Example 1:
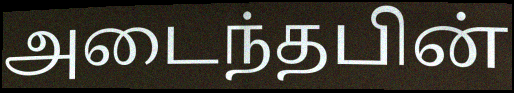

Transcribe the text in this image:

அடைந்தபின்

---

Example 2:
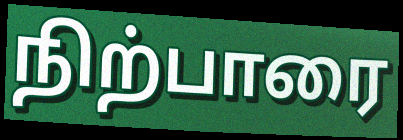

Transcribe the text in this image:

நிற்பாரை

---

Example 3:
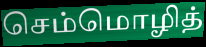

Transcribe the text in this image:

செம்மொழித்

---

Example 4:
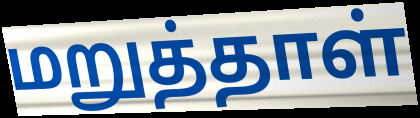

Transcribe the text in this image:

மறுத்தாள்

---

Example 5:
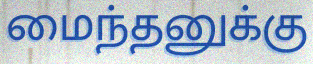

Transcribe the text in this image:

மைந்தனுக்கு